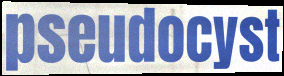
pseudocyst